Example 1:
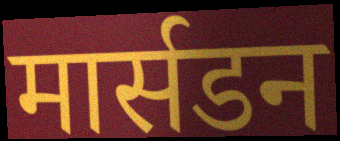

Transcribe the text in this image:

मार्सडन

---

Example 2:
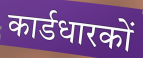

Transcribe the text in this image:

कार्डधारकों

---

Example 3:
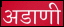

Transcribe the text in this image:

अडाणी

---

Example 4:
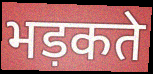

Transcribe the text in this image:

भड़कते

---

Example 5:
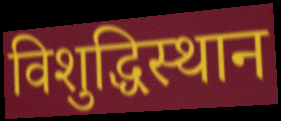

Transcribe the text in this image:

विशुद्धिस्थान